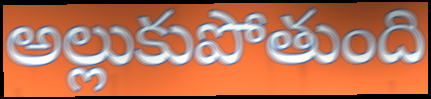
అల్లుకుపోతుంది